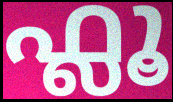
ഫ്ലൂ